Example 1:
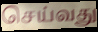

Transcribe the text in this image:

செய்வது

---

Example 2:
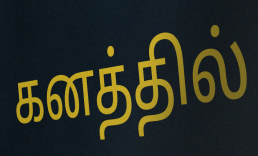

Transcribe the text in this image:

கனத்தில்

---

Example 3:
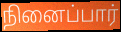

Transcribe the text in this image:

நினைப்பார்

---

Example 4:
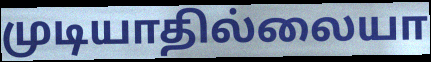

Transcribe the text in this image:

முடியாதில்லையா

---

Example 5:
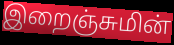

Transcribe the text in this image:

இறைஞ்சுமின்